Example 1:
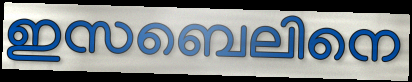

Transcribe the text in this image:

ഇസബെലിനെ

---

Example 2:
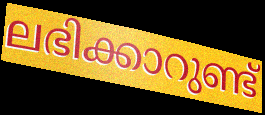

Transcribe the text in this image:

ലഭിക്കാറുണ്ട്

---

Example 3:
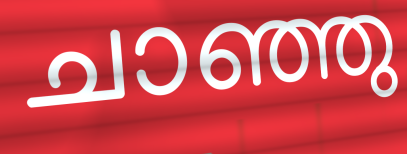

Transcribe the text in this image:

ചാഞ്ഞു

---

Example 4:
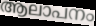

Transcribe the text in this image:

ആലാപനം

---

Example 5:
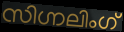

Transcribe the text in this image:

സിഗ്നലിംഗ്